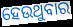
ହେଉଥୁବାର